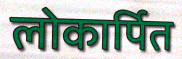
लोकार्पित